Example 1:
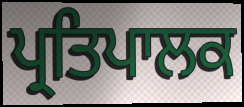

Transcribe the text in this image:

ਪ੍ਰਤਿਪਾਲਕ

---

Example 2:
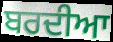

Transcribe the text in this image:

ਬਰਦੀਆ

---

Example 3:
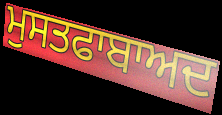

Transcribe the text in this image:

ਮੁਸਤਫਾਬਾਅਦ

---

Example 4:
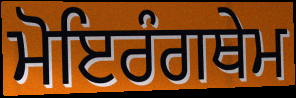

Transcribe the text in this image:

ਮੋਇਰੰਗਥੇਮ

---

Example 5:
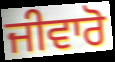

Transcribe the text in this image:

ਜੀਵਾਰੋ